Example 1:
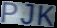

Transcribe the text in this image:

PJK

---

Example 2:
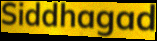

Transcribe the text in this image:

Siddhagad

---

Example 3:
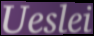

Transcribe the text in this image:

Ueslei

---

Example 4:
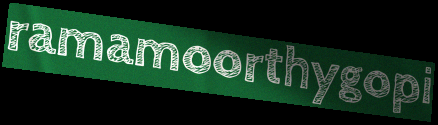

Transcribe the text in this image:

ramamoorthygopi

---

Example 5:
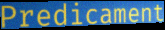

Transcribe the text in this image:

Predicament